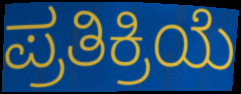
ಪ್ರತಿಕ್ರಿಯೆ